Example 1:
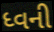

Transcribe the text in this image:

ધ્વની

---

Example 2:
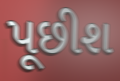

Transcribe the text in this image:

પૂછીશ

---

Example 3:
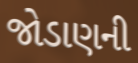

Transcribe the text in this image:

જોડાણની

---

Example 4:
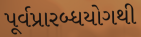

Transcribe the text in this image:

પૂર્વપ્રારબ્ધયોગથી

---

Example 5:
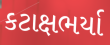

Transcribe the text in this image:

કટાક્ષભર્યા